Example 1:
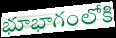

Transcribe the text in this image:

భూభాగంలోకి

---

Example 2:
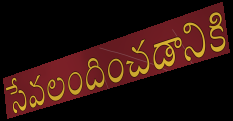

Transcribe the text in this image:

సేవలందించడానికి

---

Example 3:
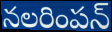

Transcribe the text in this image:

నలరింపన్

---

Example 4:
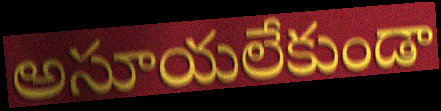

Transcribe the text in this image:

అసూయలేకుండా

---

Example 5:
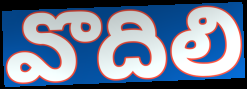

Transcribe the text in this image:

వొదిలి